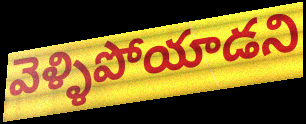
వెళ్ళిపోయాడని